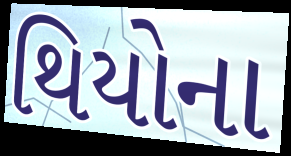
થિયોના